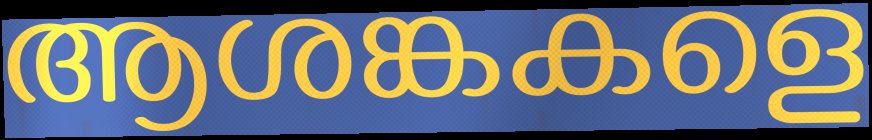
ആശങ്കകളെ